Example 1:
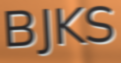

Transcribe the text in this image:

BJKS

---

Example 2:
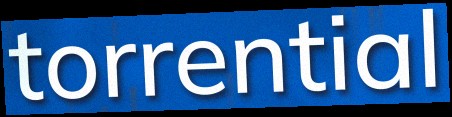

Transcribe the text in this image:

torrential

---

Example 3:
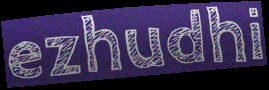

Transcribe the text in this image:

ezhudhi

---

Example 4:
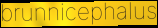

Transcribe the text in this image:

brunnicephalus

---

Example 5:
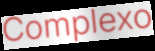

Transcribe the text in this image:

Complexo